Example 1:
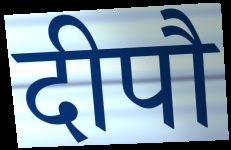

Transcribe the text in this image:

दीपौ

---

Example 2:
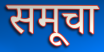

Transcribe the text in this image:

समूचा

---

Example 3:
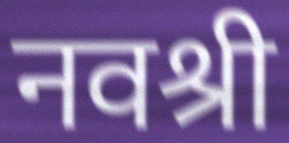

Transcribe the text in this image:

नवश्री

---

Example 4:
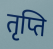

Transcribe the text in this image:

तृप्ति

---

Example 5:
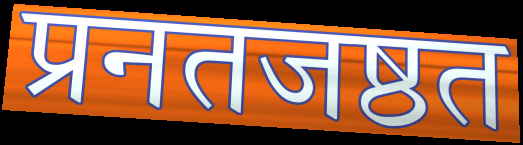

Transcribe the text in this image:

प्रनतजष्ठत